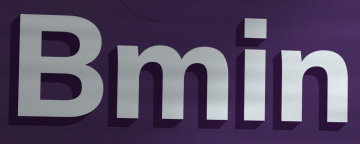
Bmin